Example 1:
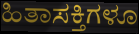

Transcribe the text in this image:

ಹಿತಾಸಕ್ತಿಗಳೂ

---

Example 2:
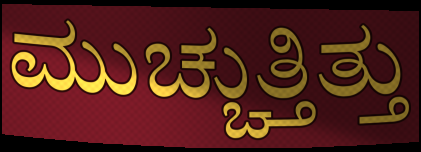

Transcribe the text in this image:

ಮುಚ್ಚುತ್ತಿತ್ತು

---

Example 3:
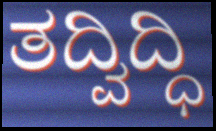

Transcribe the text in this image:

ತದ್ವಿದ್ಧಿ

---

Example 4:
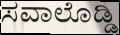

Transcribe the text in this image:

ಸವಾಲೊಡ್ಡಿ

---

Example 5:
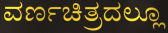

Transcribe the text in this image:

ವರ್ಣಚಿತ್ರದಲ್ಲೂ